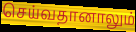
செய்வதானாலும்